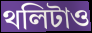
থলিটাও